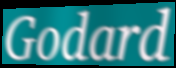
Godard